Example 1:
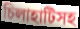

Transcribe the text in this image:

চিলাহাটিসহ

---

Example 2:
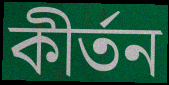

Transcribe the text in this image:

কীর্তন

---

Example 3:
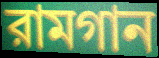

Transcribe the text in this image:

রামগান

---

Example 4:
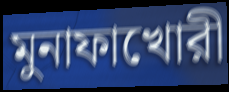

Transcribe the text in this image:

মুনাফাখোরী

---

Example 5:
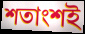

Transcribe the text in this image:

শতাংশই